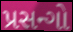
પ્રસન્ગો